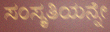
ಸಂಸ್ಕೃತಿಯನ್ನೇ